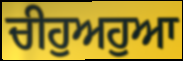
ਚੀਹੁਅਹੁਆ